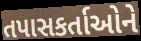
તપાસકર્તાઓને